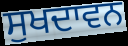
ਸੁਖਦਾਵਨ